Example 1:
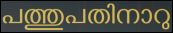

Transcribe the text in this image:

പത്തുപതിനാറു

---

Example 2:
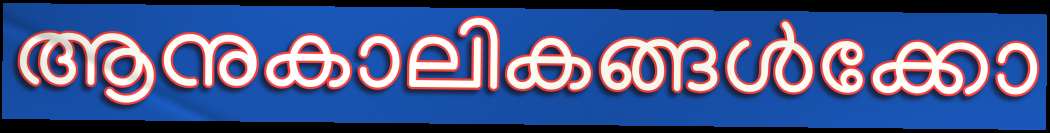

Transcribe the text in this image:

ആനുകാലികങ്ങൾക്കോ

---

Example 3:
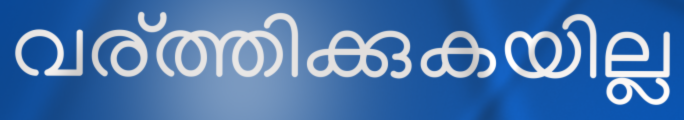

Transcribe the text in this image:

വര്ത്തിക്കുകയില്ല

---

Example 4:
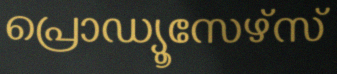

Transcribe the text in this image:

പ്രൊഡ്യൂസേഴ്സ്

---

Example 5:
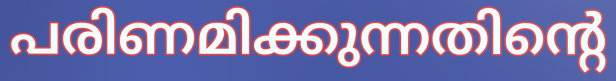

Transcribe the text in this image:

പരിണമിക്കുന്നതിന്റെ